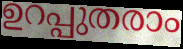
ഉറപ്പുതരാം